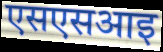
एसएसआइ